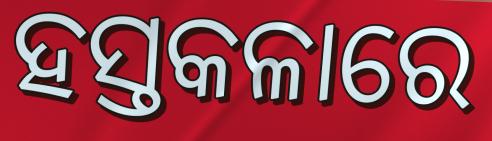
ହସ୍ତକଳାରେ